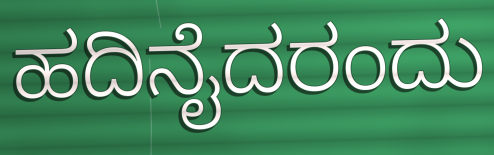
ಹದಿನೈದರಂದು